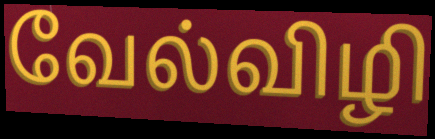
வேல்விழி